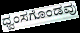
ಧ್ವಂಸಗೊಂಡವು